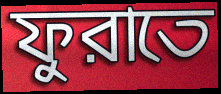
ফুরাতে